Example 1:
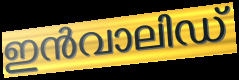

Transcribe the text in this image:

ഇൻവാലിഡ്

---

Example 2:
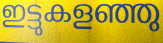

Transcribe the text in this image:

ഇട്ടുകളഞ്ഞു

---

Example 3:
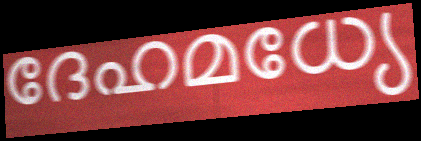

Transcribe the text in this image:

ദേഹമധ്യേ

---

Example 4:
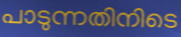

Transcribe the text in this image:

പാടുന്നതിനിടെ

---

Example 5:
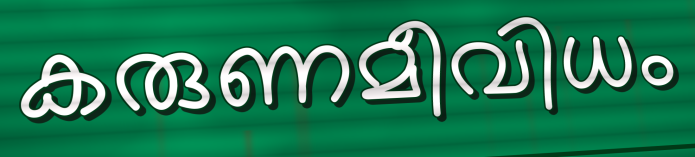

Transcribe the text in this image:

കരുണമീവിധം